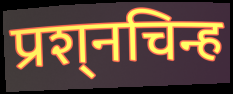
प्रश्नचिन्ह